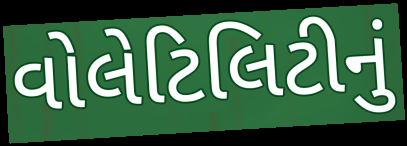
વોલેટિલિટીનું